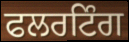
ਫਲਰਟਿੰਗ